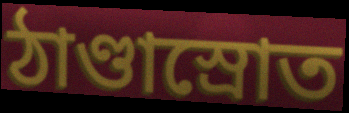
ঠাণ্ডাস্রোত